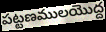
పట్టణములయొద్ద